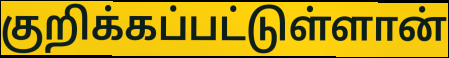
குறிக்கப்பட்டுள்ளான்